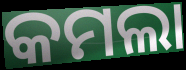
କମଲା